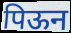
पिऊन